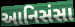
આનિસંસા